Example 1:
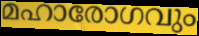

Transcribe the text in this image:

മഹാരോഗവും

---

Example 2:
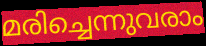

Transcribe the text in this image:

മരിച്ചെന്നുവരാം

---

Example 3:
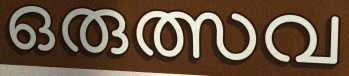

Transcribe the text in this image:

ഒരുത്സവ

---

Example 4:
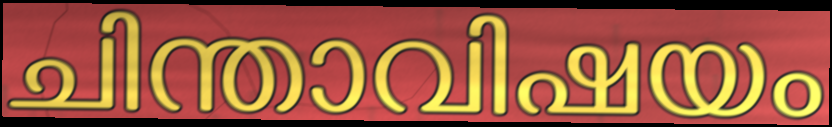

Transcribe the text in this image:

ചിന്താവിഷയം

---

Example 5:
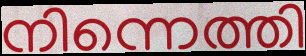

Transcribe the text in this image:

നിന്നെത്തി